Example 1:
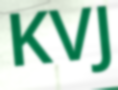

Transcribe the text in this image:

KVJ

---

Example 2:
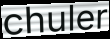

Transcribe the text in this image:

chuler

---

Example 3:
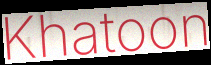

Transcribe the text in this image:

Khatoon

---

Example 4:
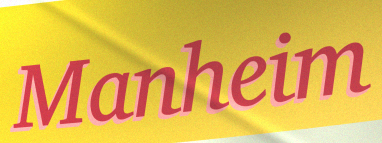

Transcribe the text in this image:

Manheim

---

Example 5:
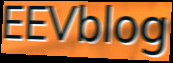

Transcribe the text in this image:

EEVblog